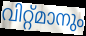
വിറ്റ്മാനും